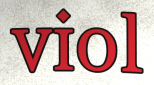
viol